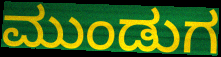
ಮುಂಡುಗ